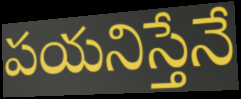
పయనిస్తేనే